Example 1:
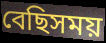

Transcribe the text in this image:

বেছিসময়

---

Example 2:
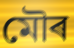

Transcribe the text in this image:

মৌৰ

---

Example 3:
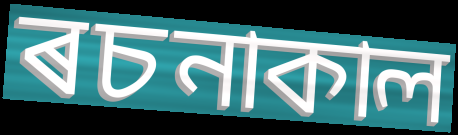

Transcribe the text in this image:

ৰচনাকাল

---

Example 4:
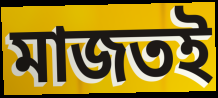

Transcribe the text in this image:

মাজতই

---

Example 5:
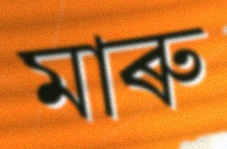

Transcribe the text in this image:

মাৰু